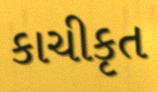
કાચીકૃત